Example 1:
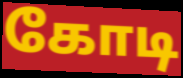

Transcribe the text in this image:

கோடி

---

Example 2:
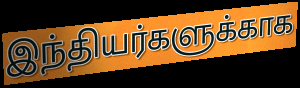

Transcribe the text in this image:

இந்தியர்களுக்காக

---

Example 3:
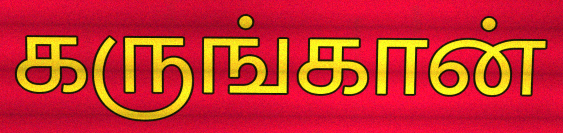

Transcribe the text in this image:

கருங்கான்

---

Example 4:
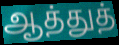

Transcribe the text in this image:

ஆத்துத்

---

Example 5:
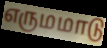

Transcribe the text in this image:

எருமமாடு